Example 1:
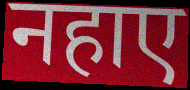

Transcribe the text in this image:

नहाए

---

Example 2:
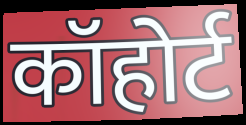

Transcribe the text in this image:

कॉहोर्ट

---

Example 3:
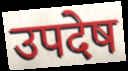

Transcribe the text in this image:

उपदेष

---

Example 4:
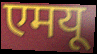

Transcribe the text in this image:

एमयू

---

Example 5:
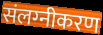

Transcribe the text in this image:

संलग्‍नीकरण